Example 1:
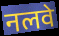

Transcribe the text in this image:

नलवे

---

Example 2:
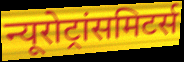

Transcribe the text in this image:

न्यूरोट्रांसमिटर्स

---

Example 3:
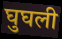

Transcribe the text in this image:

घुघली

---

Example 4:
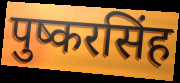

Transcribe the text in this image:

पुष्करसिंह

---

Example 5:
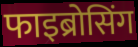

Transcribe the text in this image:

फाइब्रोसिंग